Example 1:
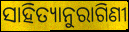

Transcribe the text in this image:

ସାହିତ୍ୟାନୁରାଗିଣୀ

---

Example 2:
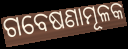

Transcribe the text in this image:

ଗବେଷଣାମୂଳକ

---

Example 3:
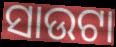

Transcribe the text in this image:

ସାଉଟା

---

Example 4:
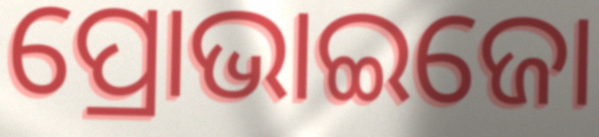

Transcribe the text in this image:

ପ୍ରୋଭାଇଜୋ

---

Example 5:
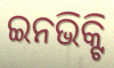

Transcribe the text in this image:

ଇନଭିକ୍ଟି